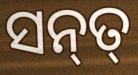
ସନ୍‌ତ୍